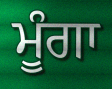
ਮੂੰਗਾ